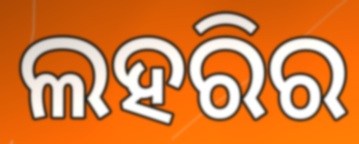
ଲହରିର